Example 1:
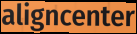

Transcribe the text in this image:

aligncenter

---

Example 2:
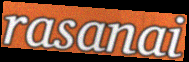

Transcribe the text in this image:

rasanai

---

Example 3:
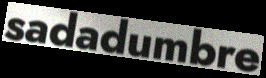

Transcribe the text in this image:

sadadumbre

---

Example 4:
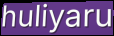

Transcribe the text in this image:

huliyaru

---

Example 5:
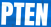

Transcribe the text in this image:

PTEN